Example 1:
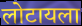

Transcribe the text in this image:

लोटायला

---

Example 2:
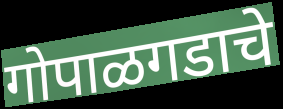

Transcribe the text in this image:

गोपाळगडाचे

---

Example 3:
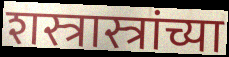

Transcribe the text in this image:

शस्त्रास्त्रांच्या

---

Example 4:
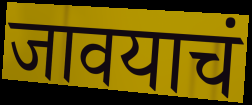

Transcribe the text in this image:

जावयाचं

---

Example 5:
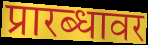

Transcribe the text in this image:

प्रारब्धावर